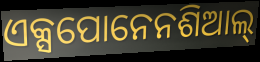
ଏକ୍ସପୋନେନଶିଆଲ୍